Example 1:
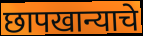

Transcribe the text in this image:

छापखान्याचे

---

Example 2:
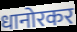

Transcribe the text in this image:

धानोरकर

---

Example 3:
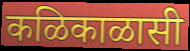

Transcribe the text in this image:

कळिकाळासी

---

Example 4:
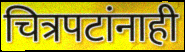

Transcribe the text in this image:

चित्रपटांनाही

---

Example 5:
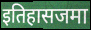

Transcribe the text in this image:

इतिहासजमा